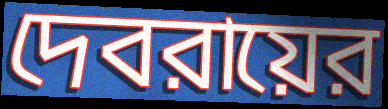
দেবরায়ের